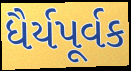
ધૈર્યપૂર્વક